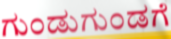
ಗುಂಡುಗುಂಡಗೆ